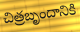
చిత్రబృందానికి